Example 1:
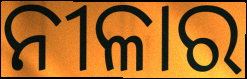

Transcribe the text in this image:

ନୀଳାର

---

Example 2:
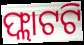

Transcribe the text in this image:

ଫ୍ଲାଟଟି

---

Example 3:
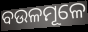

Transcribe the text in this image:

ବଉଳମୂଳେ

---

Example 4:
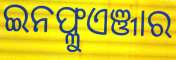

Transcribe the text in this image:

ଇନଫ୍ଳୁଏଞ୍ଜାର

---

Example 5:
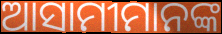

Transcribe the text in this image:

ଆସାମୀମାନଙ୍କ